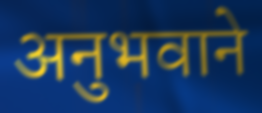
अनुभवाने